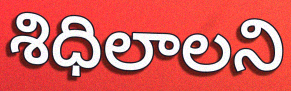
శిధిలాలని